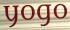
yogo